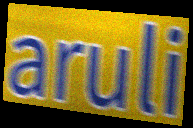
aruli